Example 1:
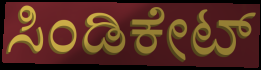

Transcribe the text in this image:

ಸಿಂಡಿಕೇಟ್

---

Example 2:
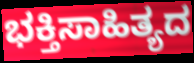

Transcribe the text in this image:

ಭಕ್ತಿಸಾಹಿತ್ಯದ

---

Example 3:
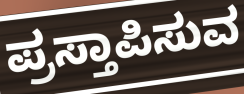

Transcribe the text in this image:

ಪ್ರಸ್ತಾಪಿಸುವ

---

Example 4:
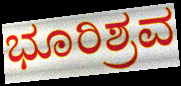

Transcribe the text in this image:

ಭೂರಿಶ್ರವ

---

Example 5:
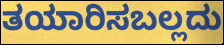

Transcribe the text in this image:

ತಯಾರಿಸಬಲ್ಲದು